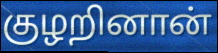
குழறினான்